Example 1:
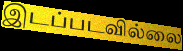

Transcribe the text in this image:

இடப்படவில்லை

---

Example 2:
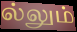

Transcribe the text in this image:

ல்லும்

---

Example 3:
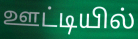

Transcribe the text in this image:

ஊட்டியில்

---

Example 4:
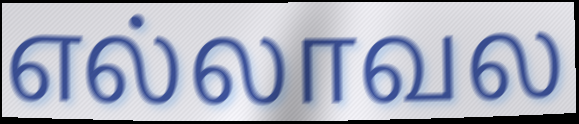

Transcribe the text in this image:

எல்லாவல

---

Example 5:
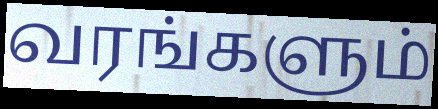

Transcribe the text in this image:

வரங்களும்